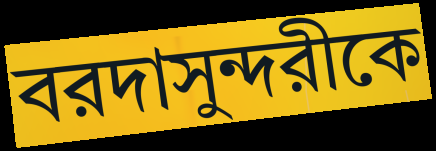
বরদাসুন্দরীকে